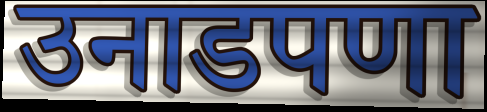
उनाडपणा